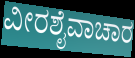
ವೀರಶೈವಾಚಾರ